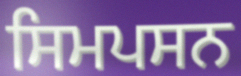
ਸਿਮਪਸਨ